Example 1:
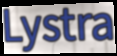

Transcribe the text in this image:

Lystra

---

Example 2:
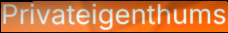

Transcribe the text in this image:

Privateigenthums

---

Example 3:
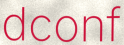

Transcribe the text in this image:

dconf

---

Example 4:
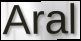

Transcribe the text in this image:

Aral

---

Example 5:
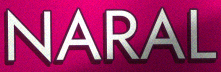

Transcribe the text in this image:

NARAL